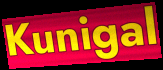
Kunigal